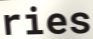
ries